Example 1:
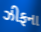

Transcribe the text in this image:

ઝીફના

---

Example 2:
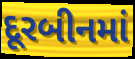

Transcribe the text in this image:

દૂરબીનમાં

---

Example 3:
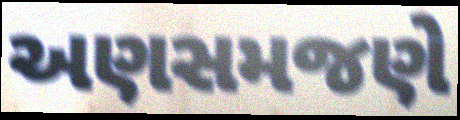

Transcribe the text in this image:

અણસમજણે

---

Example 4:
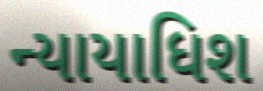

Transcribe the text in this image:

ન્યાયાધિશ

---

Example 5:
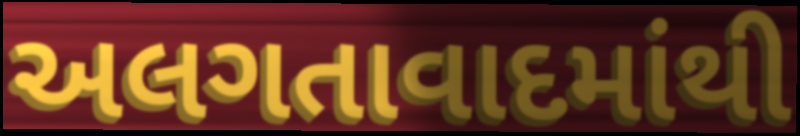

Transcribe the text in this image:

અલગતાવાદમાંથી